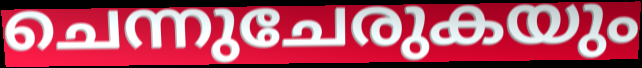
ചെന്നുചേരുകയും